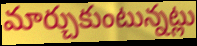
మార్చుకుంటున్నట్లు